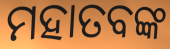
ମହାତବଙ୍କ